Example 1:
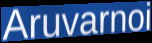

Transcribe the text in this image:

Aruvarnoi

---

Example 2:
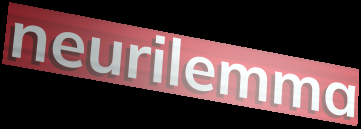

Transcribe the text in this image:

neurilemma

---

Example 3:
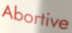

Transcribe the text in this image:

Abortive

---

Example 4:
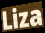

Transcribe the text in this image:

Liza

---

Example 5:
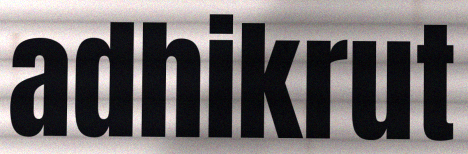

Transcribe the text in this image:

adhikrut